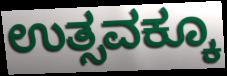
ಉತ್ಸವಕ್ಕೂ